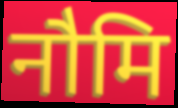
नौमि